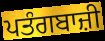
ਪਤੰਗਬਾਜ਼ੀ